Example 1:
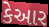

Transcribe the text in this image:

કેઆર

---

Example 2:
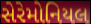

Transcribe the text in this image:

સેરેમોનિયલ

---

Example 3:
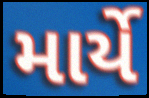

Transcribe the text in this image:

માર્યે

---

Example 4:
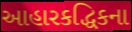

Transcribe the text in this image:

આહારકદ્ધિકના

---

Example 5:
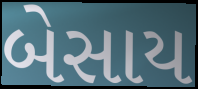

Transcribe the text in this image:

બેસાય